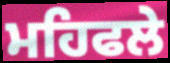
ਮਹਿਫਲੇ